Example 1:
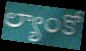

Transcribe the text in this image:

ల్యాంకో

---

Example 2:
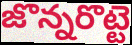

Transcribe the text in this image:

జొన్నరొట్టె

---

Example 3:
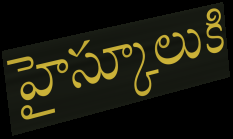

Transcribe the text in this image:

హైస్కూలుకి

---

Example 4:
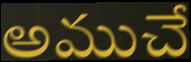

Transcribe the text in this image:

అముచే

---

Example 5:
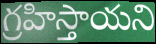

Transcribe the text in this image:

గ్రహిస్తాయని